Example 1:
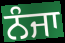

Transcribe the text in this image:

ਨੰਜਾ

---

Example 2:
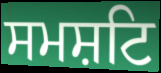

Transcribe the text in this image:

ਸਮਸ਼ਟਿ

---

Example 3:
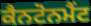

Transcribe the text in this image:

ਕੈਨਟੋਨਮੈਂਟ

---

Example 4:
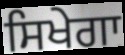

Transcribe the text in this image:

ਸਿਖੇਗਾ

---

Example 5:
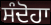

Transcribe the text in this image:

ਸੰਦੋਹਾ